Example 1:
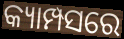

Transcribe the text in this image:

କ୍ୟାମ୍ପସରେ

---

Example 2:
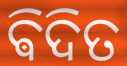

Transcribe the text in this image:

ଵିଦିତ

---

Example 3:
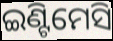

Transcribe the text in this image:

ଇଣ୍ଟିମେସି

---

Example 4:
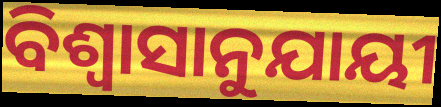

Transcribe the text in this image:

ବିଶ୍ୱାସାନୁଯାୟୀ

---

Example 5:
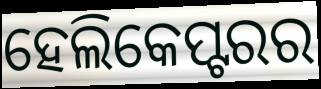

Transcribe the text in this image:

ହେଲିକେପ୍ଟରର